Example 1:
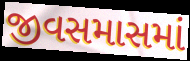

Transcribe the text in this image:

જીવસમાસમાં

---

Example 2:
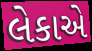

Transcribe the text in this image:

લેકાએ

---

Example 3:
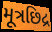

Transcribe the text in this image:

મૂત્રછિદ્ર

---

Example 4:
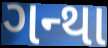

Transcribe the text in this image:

ગન્થા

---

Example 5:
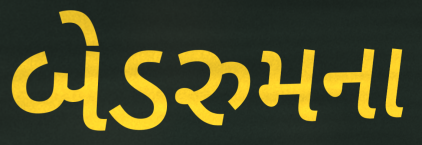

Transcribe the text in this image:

બેડરુમના